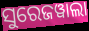
ସୁରେଜୱାଲା